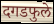
दगडफुले